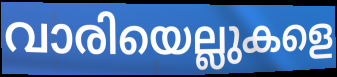
വാരിയെല്ലുകളെ